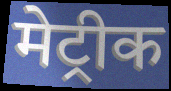
मेट्रीक